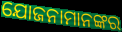
ଯୋଜନାମାନଙ୍କର